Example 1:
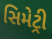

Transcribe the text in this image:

સિમેટ્રી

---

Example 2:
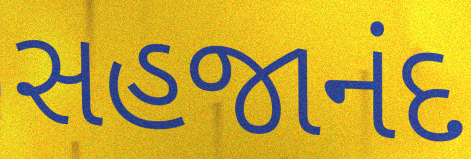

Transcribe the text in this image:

સહજાનંદ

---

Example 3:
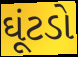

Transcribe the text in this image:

ઘૂંટડો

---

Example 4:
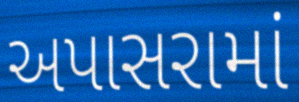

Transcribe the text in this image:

અપાસરામાં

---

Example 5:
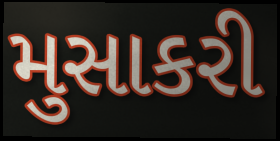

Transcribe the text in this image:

મુસાકરી